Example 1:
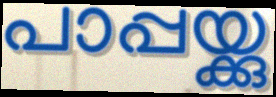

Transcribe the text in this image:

പാപ്പയ്ക്കു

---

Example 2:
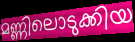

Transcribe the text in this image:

മണ്ണിലൊടുക്കിയ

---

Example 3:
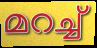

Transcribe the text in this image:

മറച്ച്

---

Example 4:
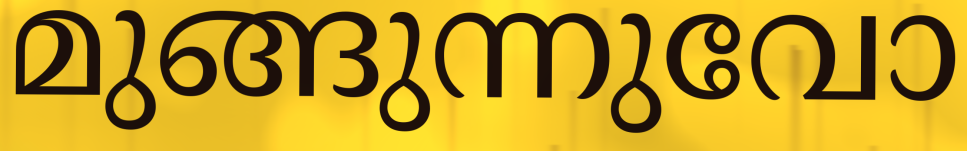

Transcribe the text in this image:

മുങ്ങുന്നുവോ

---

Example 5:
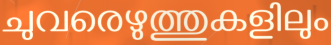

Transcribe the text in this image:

ചുവരെഴുത്തുകളിലും